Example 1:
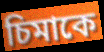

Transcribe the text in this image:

চিমাকে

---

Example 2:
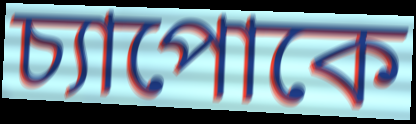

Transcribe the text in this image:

চ্যাপোকে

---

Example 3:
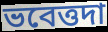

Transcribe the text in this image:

ভবেত্তদা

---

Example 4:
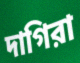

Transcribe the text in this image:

দাগিরা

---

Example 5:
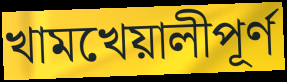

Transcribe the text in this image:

খামখেয়ালীপূর্ণ